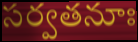
సర్వతనూః